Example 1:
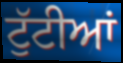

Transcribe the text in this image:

ਟੁੱਟੀਆਂ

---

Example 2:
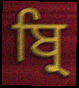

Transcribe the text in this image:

ਬ੍ਰਿ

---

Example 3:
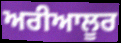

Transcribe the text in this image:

ਅਰੀਆਲੂਰ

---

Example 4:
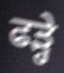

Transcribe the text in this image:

ਫੜ੍ਹੇ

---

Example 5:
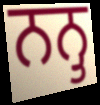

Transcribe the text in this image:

ਨਨ੍ਤ